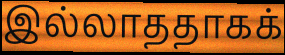
இல்லாததாகக்